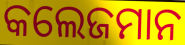
କଲେଜମାନ